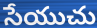
సేయుచు